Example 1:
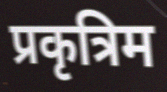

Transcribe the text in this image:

प्रकृत्रिम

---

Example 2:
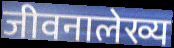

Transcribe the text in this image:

जीवनालेख्य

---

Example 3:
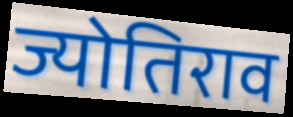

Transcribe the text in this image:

ज्‍योतिराव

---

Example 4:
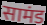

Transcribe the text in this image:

सामंड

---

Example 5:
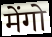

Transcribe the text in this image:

मेंगो